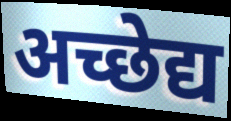
अच्छेद्य